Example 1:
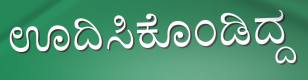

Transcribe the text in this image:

ಊದಿಸಿಕೊಂಡಿದ್ದ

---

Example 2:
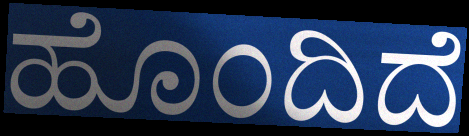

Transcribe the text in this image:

ಹೊಂದಿದೆ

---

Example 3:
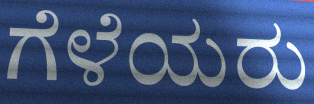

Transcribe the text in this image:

ಗೆಳೆಯರು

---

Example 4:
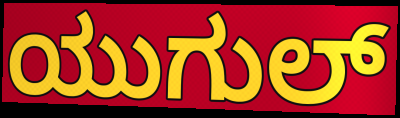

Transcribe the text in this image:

ಯುಗುಲ್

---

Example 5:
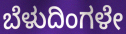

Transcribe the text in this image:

ಬೆಳುದಿಂಗಳೇ